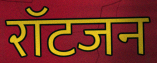
रॉटजन